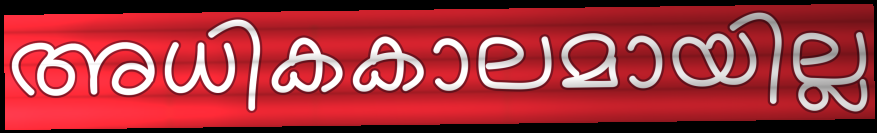
അധികകാലമായില്ല